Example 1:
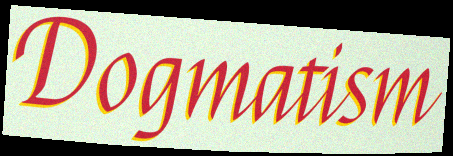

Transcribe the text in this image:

Dogmatism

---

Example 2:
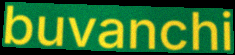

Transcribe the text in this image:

buvanchi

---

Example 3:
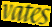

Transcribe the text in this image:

vates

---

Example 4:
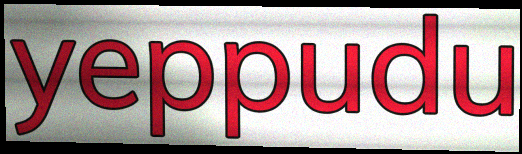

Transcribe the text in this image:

yeppudu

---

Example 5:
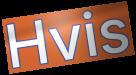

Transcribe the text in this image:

Hvis